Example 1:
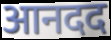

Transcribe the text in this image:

आनदद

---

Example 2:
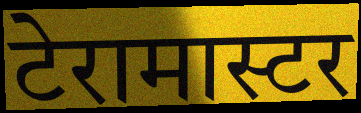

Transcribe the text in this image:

टेरामास्टर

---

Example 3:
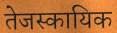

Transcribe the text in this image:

तेजस्कायिक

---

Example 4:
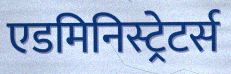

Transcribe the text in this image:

एडमिनिस्ट्रेटर्स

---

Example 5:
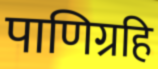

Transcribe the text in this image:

पाणिग्रहि